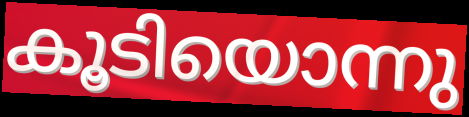
കൂടിയൊന്നു